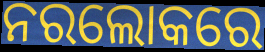
ନରଲୋକରେ